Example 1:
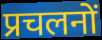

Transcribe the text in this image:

प्रचलनों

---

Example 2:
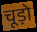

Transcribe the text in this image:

चूड़ो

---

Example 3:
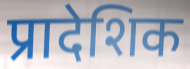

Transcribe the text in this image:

प्रादेशिक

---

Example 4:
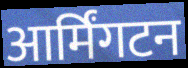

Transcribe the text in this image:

आर्मिंगटन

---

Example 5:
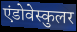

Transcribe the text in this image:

एंडोवेस्कुलर